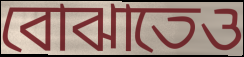
বোঝাতেও